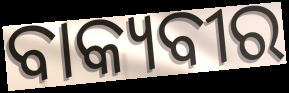
ବାକ୍ୟବୀର